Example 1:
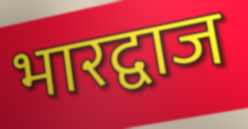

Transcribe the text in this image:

भारद्वाज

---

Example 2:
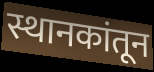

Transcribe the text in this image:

स्थानकांतून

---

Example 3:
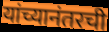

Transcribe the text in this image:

यांच्यानंतरची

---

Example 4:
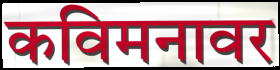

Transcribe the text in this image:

कविमनावर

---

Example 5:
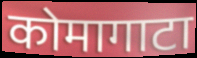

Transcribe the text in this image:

कोमागाटा